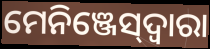
ମେନିଞ୍ଜେସ୍‌ଦ୍ୱାରା